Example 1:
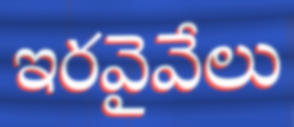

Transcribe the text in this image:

ఇరవైవేలు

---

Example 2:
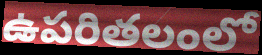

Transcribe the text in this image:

ఉపరితలంలో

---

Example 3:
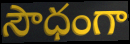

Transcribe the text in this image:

సౌధంగా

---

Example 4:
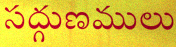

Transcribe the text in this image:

సద్గుణములు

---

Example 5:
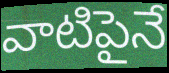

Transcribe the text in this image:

వాటిపైనే